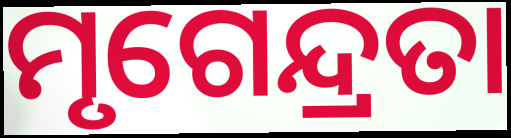
ମୃଗେନ୍ଦ୍ରତା